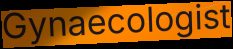
Gynaecologist